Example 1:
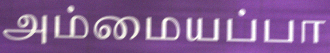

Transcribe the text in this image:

அம்மையப்பா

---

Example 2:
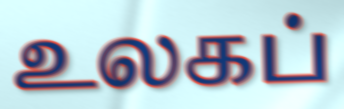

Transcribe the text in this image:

உலகப்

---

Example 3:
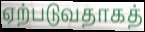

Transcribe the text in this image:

ஏற்படுவதாகத்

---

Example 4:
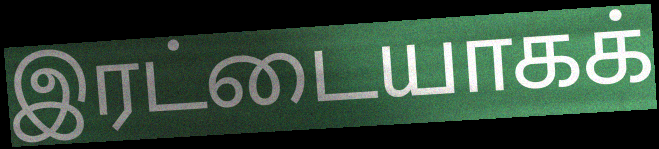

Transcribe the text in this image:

இரட்டையாகக்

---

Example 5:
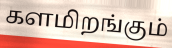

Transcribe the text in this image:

களமிறங்கும்